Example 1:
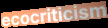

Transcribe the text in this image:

ecocriticism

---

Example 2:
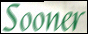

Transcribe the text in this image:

Sooner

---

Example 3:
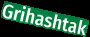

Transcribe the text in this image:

Grihashtak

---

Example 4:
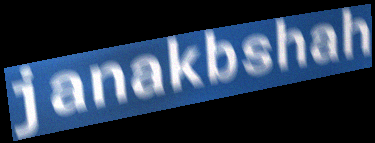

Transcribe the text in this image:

janakbshah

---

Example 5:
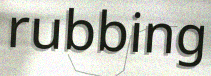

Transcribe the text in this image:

rubbing